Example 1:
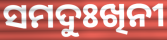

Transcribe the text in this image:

ସମଦୁଃଖିନୀ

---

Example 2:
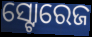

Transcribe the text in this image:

ସ୍ଟୋରେଜ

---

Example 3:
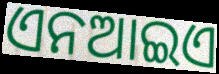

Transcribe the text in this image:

ଏନଆଇଏ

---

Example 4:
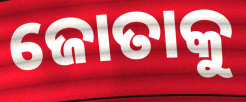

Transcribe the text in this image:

ଜୋତାକୁ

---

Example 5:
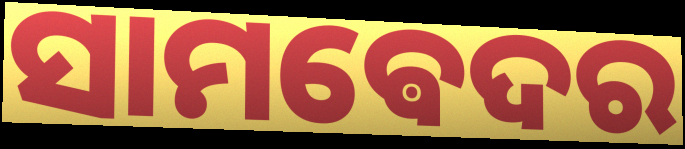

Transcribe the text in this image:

ସାମଵେଦର